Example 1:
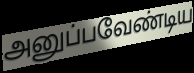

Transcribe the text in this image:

அனுப்பவேண்டிய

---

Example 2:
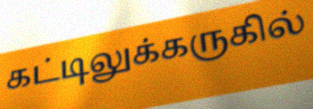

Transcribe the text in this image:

கட்டிலுக்கருகில்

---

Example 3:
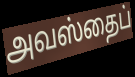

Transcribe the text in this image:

அவஸ்தைப்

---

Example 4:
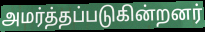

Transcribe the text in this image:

அமர்த்தப்படுகின்றனர்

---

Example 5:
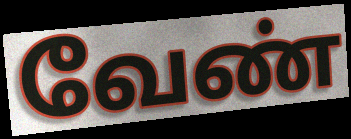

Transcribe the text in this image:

வேண்